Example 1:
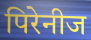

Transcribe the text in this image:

पिरेनीज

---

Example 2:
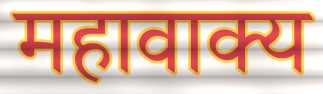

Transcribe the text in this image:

महावाक्य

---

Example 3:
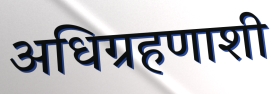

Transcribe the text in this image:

अधिग्रहणाशी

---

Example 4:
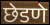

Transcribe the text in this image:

छेडणे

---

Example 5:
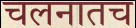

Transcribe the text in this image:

चलनातच